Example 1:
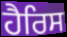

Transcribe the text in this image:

ਹੈਰਿਸ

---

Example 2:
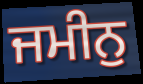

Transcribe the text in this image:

ਜਮੀਨੁ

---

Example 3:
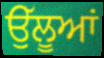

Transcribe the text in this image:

ਉੱਲੂਆਂ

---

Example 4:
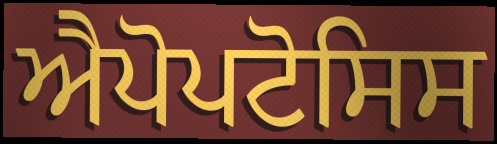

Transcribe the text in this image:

ਐਪੋਪਟੋਸਿਸ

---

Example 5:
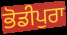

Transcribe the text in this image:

ਭੋਡੀਪੁਰਾ